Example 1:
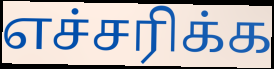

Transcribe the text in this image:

எச்சரிக்க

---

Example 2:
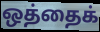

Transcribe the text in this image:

ஒத்தைக்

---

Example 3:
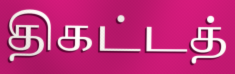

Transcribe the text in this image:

திகட்டத்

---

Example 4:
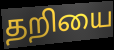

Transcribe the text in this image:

தறியை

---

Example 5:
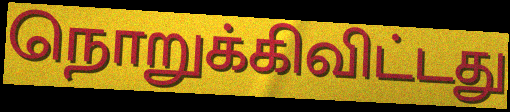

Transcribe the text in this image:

நொறுக்கிவிட்டது